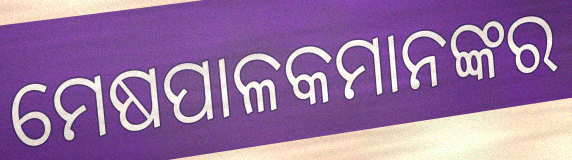
ମେଷପାଳକମାନଙ୍କର